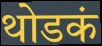
थोडकं